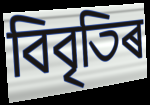
বিবৃতিৰ